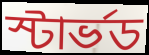
স্টার্ভড